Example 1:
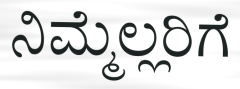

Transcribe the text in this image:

ನಿಮ್ಮೆಲ್ಲರಿಗೆ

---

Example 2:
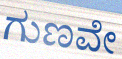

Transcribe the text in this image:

ಗುಣವೇ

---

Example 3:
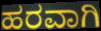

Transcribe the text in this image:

ಹರವಾಗಿ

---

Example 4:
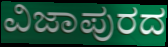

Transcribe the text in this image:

ವಿಜಾಪುರದ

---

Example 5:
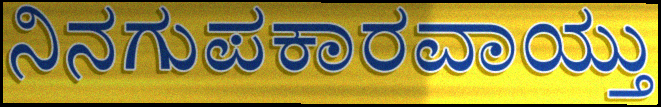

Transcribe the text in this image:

ನಿನಗುಪಕಾರವಾಯ್ತು